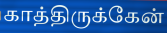
காத்திருக்கேன்